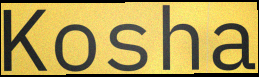
Kosha